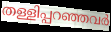
തള്ളിപ്പറഞ്ഞവർ